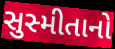
સુસ્મીતાનો